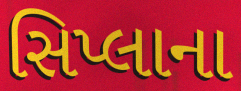
સિપ્લાના